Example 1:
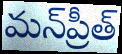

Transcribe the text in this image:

మన్‌ప్రీత్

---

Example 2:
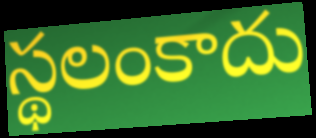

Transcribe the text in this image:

స్థలంకాదు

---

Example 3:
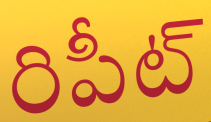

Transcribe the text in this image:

రిపీట్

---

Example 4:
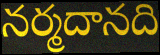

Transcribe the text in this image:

నర్మదానది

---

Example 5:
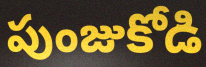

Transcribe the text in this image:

పుంజుకోడి